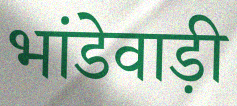
भांडेवाड़ी